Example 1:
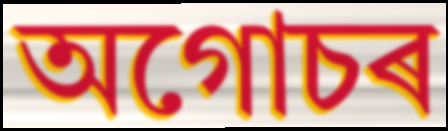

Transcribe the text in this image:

অগোচৰ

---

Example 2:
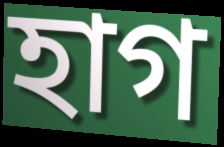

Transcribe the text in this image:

হাগ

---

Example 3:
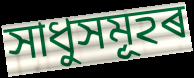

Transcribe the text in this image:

সাধুসমূহৰ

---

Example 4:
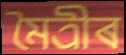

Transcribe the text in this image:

মৈত্ৰীৰ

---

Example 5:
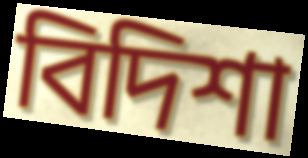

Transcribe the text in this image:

বিদিশা